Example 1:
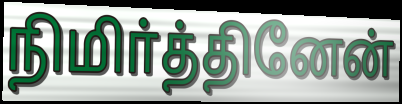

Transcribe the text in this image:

நிமிர்த்தினேன்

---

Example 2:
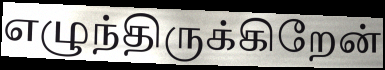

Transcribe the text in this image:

எழுந்திருக்கிறேன்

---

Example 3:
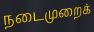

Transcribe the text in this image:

நடைமுறைக்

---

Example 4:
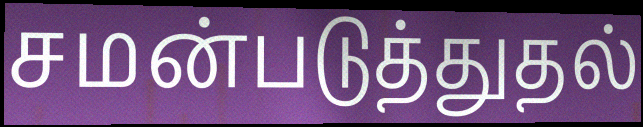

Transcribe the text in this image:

சமன்படுத்துதல்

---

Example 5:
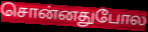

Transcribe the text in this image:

சொன்னதுபோல